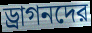
ড্রাগনদের